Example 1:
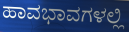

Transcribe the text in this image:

ಹಾವಭಾವಗಳಲ್ಲಿ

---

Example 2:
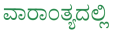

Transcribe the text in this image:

ವಾರಾಂತ್ಯದಲ್ಲಿ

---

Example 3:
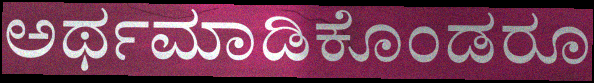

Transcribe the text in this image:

ಅರ್ಥಮಾಡಿಕೊಂಡರೂ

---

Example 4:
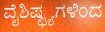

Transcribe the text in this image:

ವೈಶಿಷ್ಟ್ಯಗಳಿಂದ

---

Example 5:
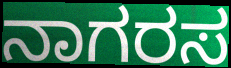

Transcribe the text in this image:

ನಾಗರಸ